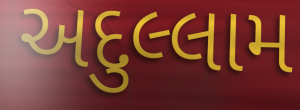
અદુલ્લામ